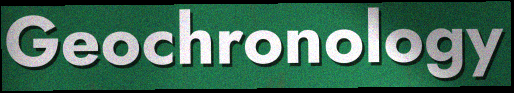
Geochronology